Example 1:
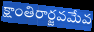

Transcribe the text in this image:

క్షాంతిరార్జవమేవ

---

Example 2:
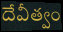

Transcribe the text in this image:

దేవీత్వం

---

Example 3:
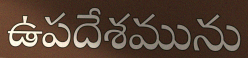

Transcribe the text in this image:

ఉపదేశమును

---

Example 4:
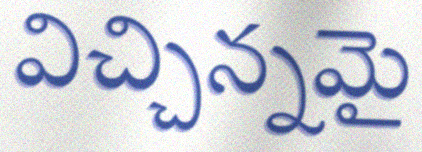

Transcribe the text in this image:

విచ్చిన్నమై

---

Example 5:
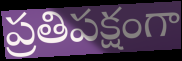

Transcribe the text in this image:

ప్రతిపక్షంగా